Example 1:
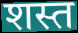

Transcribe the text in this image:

शस्त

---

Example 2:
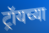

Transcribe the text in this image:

ट्रॉयच्या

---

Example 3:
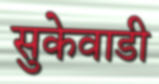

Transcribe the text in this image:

सुकेवाडी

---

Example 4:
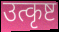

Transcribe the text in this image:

उत्कृष्ट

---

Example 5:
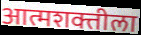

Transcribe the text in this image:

आत्मशक्तीला